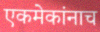
एकमेकांनाच